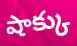
షాక్కు